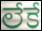
లేకే